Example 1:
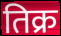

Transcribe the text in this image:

तिक्र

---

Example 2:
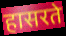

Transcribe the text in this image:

हासरते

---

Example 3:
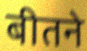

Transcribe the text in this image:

बीतने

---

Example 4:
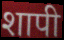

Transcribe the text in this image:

शापी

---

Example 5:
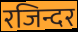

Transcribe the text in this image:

रजिन्दर